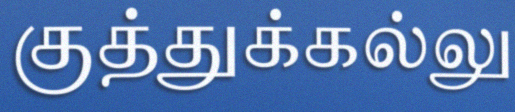
குத்துக்கல்லு